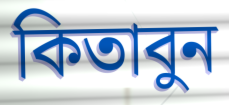
কিতাবুন